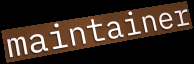
maintainer